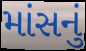
માંસનું